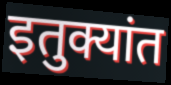
इतुक्यांत